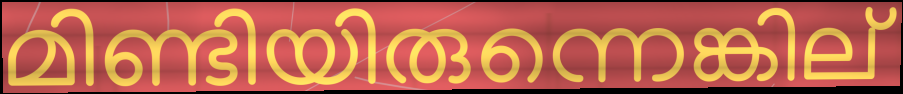
മിണ്ടിയിരുന്നെങ്കില്